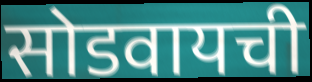
सोडवायची